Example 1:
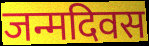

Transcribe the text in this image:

जन्मदिवस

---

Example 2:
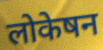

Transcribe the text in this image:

लोकेषन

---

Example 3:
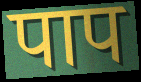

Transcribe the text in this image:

पाप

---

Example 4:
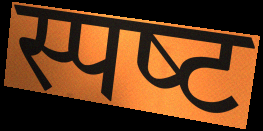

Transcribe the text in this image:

स्‍पष्‍ट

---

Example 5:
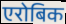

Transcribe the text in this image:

एरोबिक